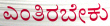
ಎಂತಿರಬೇಕು